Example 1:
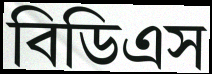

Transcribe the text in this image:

বিডিএস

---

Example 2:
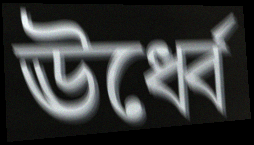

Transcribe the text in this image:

ঊর্ধ্বে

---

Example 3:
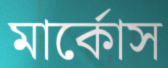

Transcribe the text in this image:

মার্কোস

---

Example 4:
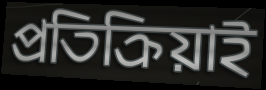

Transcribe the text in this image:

প্রতিক্রিয়াই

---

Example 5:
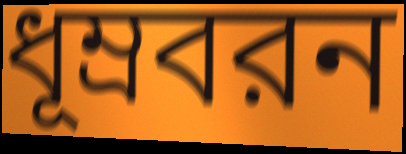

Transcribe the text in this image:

ধূম্রবরন